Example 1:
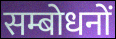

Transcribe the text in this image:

सम्बोधनों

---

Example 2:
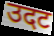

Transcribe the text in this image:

उदट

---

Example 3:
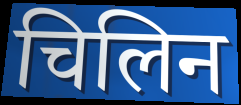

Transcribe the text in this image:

चिलिन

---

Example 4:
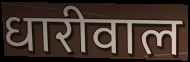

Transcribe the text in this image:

धारीवाल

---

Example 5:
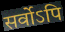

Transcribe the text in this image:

सर्वोऽपि